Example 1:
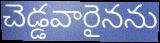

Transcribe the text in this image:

చెడ్డవారైనను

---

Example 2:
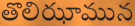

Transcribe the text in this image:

తొలిఝామున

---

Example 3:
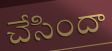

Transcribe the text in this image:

చేసిందా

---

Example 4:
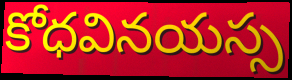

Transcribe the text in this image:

కోధవినయస్స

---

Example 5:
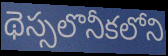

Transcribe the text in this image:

థెస్సలొనీకలోని